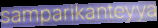
samparikanteyya